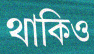
থাকিও